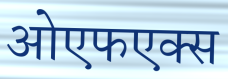
ओएफएक्स